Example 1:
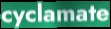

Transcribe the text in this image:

cyclamate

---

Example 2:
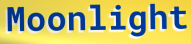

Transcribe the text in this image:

Moonlight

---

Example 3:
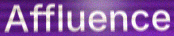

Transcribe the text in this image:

Affluence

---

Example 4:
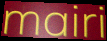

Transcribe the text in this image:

mairi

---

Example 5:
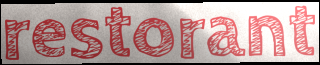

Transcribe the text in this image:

restorant